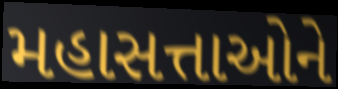
મહાસત્તાઓને